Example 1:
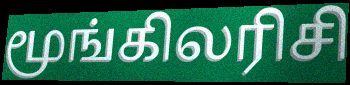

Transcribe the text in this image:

மூங்கிலரிசி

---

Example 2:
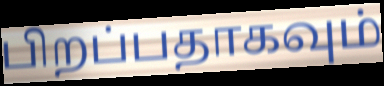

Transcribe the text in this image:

பிறப்பதாகவும்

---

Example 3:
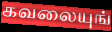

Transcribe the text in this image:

கவலையுங்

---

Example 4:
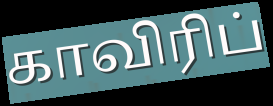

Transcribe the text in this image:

காவிரிப்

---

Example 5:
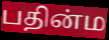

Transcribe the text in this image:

பதின்ம